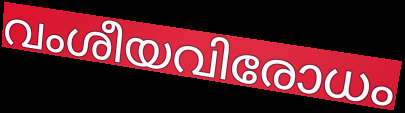
വംശീയവിരോധം